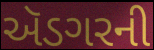
ઍડગરની